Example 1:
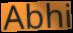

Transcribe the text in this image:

Abhi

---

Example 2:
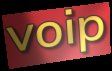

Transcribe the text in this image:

voip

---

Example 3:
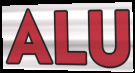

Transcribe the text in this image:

ALU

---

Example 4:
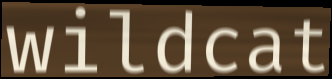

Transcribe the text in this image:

wildcat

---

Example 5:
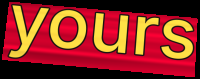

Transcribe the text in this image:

yours